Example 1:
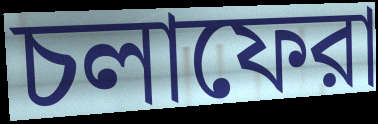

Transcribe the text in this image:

চলাফেরা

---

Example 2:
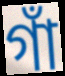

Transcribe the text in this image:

গাঁ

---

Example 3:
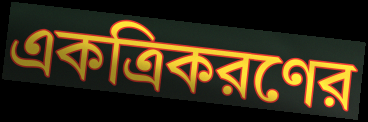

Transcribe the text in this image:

একত্রিকরণের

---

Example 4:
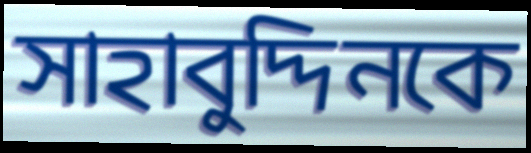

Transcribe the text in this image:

সাহাবুদ্দিনকে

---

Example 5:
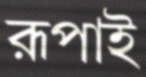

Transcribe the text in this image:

রূপাই